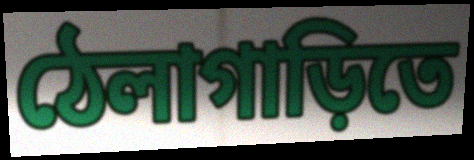
ঠেলাগাড়িতে